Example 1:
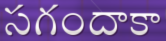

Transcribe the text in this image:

సగందాకా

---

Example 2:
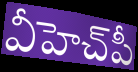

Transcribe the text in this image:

వీహెచ్‌పీ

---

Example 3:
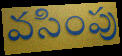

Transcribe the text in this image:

వసింపు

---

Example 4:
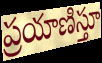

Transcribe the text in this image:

ప్రయాణిస్తూ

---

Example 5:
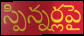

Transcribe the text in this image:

స్పిన్నర్లపై